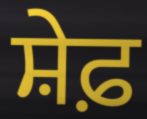
ਸ਼ੇਫ਼